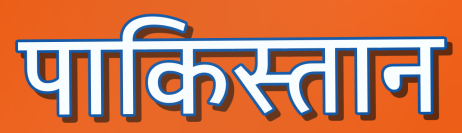
पाकिस्तान